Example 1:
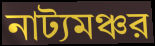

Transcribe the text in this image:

নাট্যমঞ্চর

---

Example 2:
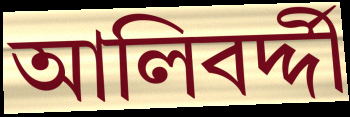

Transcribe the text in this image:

আলিবর্দ্দী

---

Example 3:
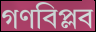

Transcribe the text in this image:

গণবিপ্লব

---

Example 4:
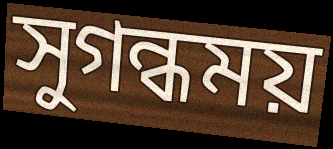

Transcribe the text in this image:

সুগন্ধময়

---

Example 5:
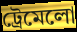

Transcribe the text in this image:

ট্রেমেলো